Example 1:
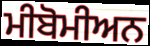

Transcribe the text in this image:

ਮੀਬੋਮੀਅਨ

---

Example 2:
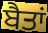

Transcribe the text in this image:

ਬੈਤਾਂ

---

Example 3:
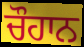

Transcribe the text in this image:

ਚੌਹਾਨ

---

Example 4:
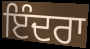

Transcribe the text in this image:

ਇੰਦਰਾ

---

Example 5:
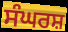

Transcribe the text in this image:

ਸੰਘਰਸ਼